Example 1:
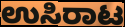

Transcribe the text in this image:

ಉಸಿರಾಟ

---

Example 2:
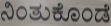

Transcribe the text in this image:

ನಿಂತುಕೊಂಡೆ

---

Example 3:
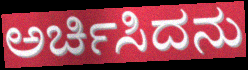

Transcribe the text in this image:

ಅರ್ಚಿಸಿದನು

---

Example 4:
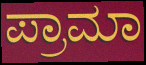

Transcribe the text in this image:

ಪ್ರಾಮಾ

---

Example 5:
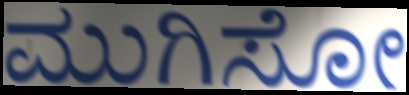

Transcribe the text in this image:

ಮುಗಿಸೋ